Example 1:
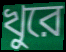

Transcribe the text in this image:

খুরে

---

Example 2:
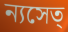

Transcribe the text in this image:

ন্যসেত্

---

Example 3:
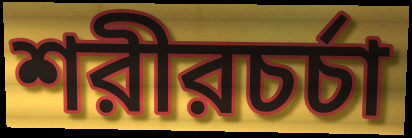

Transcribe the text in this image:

শরীরচর্চা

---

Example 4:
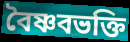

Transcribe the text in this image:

বৈষ্ণবভক্তি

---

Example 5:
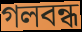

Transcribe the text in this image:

গলবন্ধ